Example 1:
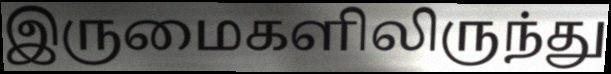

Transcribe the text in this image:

இருமைகளிலிருந்து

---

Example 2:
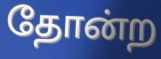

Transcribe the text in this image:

தோன்ற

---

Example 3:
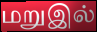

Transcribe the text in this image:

மறுஇல்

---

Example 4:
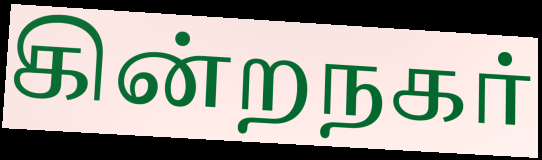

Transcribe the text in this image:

கின்றநகர்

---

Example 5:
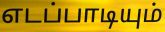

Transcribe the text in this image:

எடப்பாடியும்